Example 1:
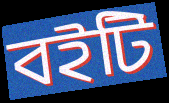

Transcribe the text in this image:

বইটি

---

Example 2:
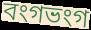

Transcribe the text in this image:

বংগভংগ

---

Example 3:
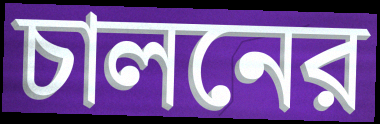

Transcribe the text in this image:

চালনের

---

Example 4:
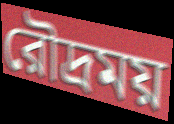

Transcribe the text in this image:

রৌদ্রময়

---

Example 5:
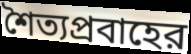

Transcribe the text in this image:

শৈত্যপ্রবাহের